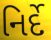
નિર્દે